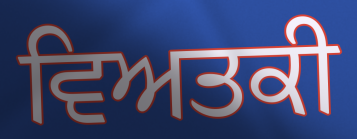
ਵਿਅਤਕੀ